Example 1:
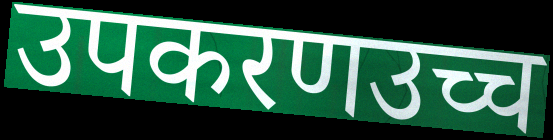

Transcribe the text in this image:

उपकरणउच्च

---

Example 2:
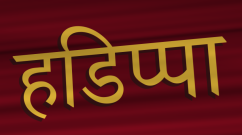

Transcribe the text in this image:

हडिप्पा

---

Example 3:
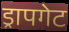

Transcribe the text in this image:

ड्रापगेट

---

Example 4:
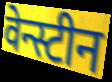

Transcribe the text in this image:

वेन्स्टीन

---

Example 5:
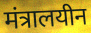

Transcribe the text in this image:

मंत्रालयीन